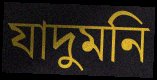
যাদুমনি